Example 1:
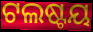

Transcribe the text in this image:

ଟଲଷ୍ଟୟ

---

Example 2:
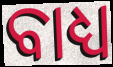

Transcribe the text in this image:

ବାଧ୍ୟ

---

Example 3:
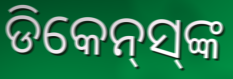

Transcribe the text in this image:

ଡିକେନ୍‌ସ୍‌ଙ୍କ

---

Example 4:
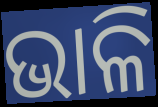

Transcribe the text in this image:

ଭାଳି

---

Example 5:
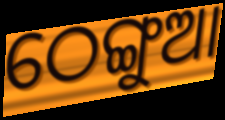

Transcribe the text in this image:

ଠେଙ୍ଗୁଆ